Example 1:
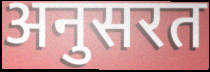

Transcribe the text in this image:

अनुसरत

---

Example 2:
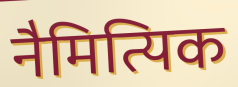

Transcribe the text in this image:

नैमित्यिक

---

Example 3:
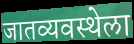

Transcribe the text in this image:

जातव्यवस्थेला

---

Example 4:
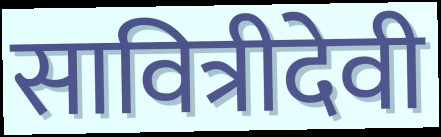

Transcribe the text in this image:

सावित्रीदेवी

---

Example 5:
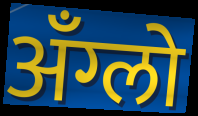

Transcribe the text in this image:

अँग्लो